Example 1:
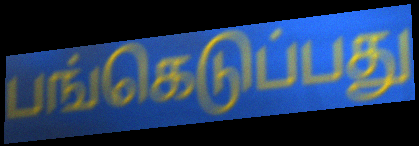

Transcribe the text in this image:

பங்கெடுப்பது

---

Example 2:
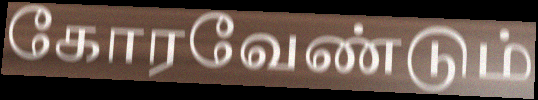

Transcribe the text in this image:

கோரவேண்டும்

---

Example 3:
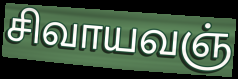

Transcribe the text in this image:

சிவாயவஞ்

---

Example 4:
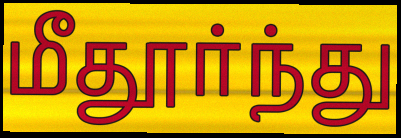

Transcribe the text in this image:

மீதூர்ந்து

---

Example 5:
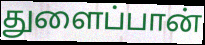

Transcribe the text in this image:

துளைப்பான்